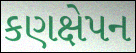
કણક્ષેપન